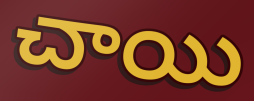
చాయి